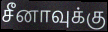
சீனாவுக்கு